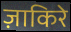
ज़ाकिरे